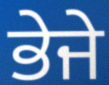
ਭੇਜੇ